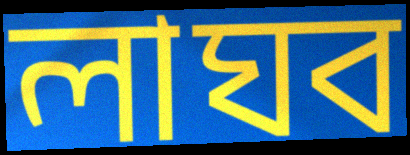
লাঘব